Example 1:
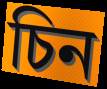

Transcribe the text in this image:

চিন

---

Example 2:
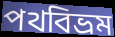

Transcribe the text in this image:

পথবিভ্রম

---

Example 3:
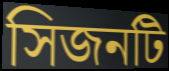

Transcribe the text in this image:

সিজনটি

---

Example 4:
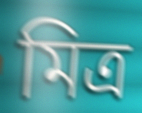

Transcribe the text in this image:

মিত্র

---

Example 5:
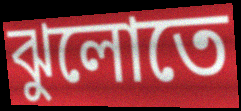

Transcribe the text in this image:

ঝুলোতে